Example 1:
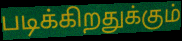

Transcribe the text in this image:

படிக்கிறதுக்கும்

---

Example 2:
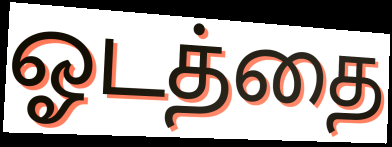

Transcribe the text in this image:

ஓடத்தை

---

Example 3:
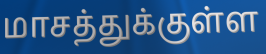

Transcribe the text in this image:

மாசத்துக்குள்ள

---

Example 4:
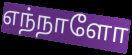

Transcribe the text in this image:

எந்நாளோ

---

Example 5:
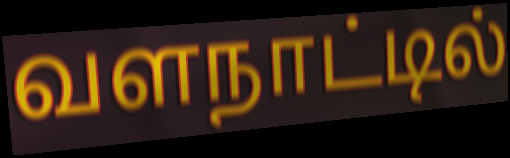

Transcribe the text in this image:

வளநாட்டில்